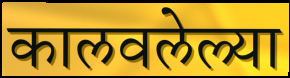
कालवलेल्या